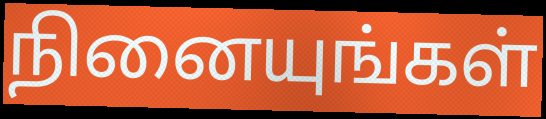
நினையுங்கள்